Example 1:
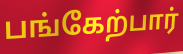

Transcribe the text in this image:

பங்கேற்பார்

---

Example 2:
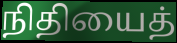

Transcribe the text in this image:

நிதியைத்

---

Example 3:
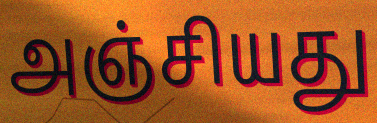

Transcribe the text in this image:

அஞ்சியது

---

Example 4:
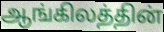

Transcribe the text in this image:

ஆங்கிலத்தின்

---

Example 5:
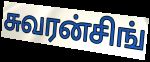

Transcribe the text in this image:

சுவரன்சிங்